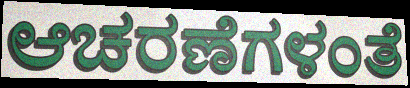
ಆಚರಣೆಗಳಂತೆ